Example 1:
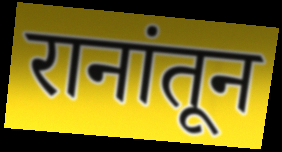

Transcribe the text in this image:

रानांतून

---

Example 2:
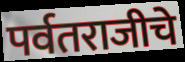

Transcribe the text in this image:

पर्वतराजीचे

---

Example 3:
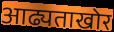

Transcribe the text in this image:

आढ्यताखोर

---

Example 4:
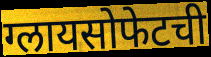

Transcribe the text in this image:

ग्लायसोफेटची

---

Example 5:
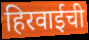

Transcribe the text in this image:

हिरवाईची